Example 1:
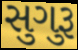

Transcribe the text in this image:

સુગુરૂ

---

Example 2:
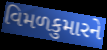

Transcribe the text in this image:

વિમળકુમારને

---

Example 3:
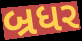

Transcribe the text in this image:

બ્રધર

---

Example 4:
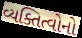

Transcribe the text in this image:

વ્યક્તિત્વોનો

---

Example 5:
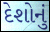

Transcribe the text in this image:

દેશોનું